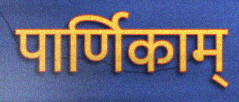
पार्णिकाम्